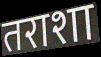
तराशा